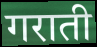
गराती